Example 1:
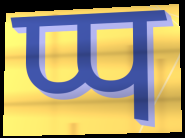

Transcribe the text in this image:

प्प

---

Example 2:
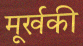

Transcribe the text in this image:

मूर्खकी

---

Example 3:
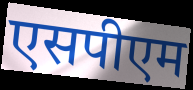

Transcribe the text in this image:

एसपीएम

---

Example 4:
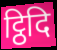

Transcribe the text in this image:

ट्ठिदि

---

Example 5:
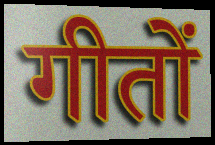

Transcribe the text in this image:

गीतों